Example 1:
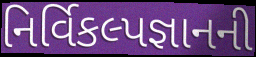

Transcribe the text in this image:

નિર્વિકલ્પજ્ઞાનની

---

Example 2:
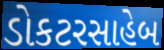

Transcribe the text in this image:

ડોકટરસાહેબ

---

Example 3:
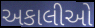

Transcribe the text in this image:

અકાલીઓ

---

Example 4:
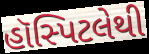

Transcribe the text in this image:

હૉસ્પિટલેથી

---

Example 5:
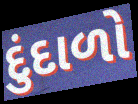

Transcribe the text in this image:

દુંદાળો